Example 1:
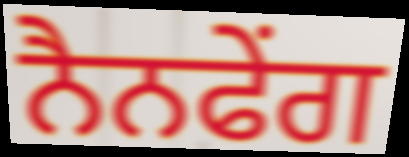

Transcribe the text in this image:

ਨੈਨਫੇਂਗ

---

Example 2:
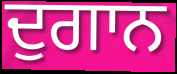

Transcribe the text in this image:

ਦੁਗਾਨ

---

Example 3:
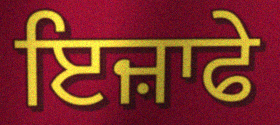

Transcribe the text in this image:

ਇਜ਼ਾਫੇ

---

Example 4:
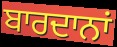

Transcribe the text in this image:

ਬਾਰਦਾਨਾਂ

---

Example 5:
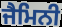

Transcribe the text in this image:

ਜੈਮਿਨੀ